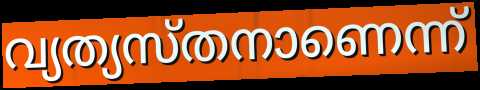
വ്യത്യസ്തനാണെന്ന്